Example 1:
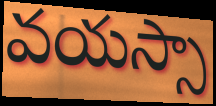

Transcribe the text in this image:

వయస్సా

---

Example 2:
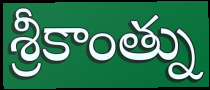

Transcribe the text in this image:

శ్రీకాంత్ను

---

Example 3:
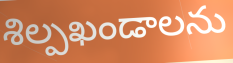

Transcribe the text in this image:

శిల్పఖండాలను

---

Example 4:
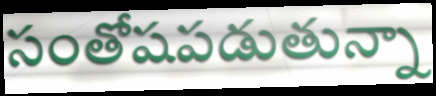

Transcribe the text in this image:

సంతోషపడుతున్నా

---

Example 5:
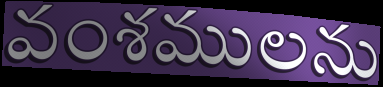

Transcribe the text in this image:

వంశములను